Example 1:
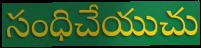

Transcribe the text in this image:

సంధిచేయుచు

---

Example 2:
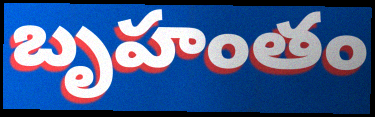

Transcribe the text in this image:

బృహంతం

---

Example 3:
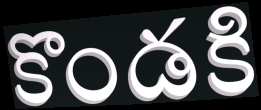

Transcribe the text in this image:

కొండకి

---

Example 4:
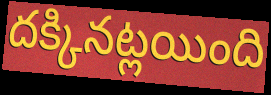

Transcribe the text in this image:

దక్కినట్లయింది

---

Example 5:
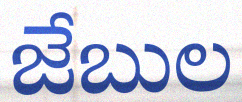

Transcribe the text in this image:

జేబుల